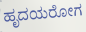
ಹೃದಯರೋಗ